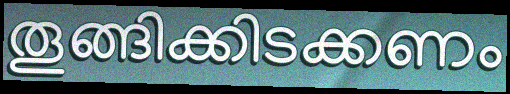
തൂങ്ങിക്കിടക്കണം